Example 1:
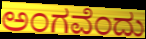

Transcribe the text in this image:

ಅಂಗವೆಂದು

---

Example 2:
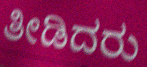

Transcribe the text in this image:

ತೀಡಿದರು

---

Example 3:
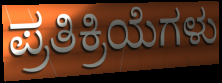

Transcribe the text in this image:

ಪ್ರತಿಕ್ರಿಯೆಗಳು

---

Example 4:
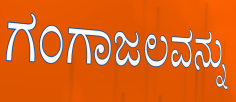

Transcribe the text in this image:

ಗಂಗಾಜಲವನ್ನು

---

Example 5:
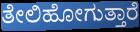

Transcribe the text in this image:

ತೇಲಿಹೋಗುತ್ತಾರೆ